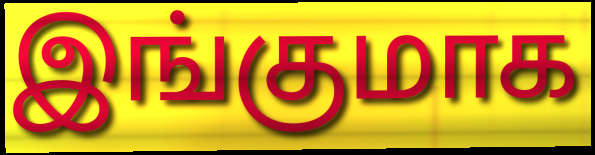
இங்குமாக